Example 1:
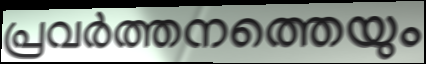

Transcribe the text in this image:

പ്രവർത്തനത്തെയും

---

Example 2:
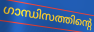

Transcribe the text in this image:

ഗാന്ധിസത്തിന്റെ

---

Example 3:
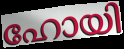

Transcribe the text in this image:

ഹോയി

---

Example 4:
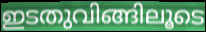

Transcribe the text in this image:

ഇടതുവിങ്ങിലൂടെ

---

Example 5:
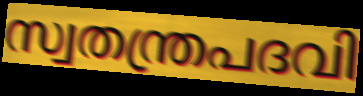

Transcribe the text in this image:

സ്വതന്ത്രപദവി